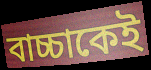
বাচ্চাকেই